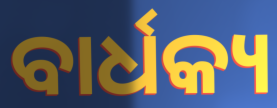
ବାର୍ଧକ୍ୟ